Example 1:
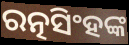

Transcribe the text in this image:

ରତ୍ନସିଂହଙ୍କ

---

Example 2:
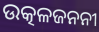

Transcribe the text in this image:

ଉତ୍କଳଜନନୀ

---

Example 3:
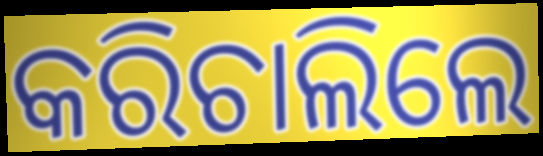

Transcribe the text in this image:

କରିଚାଲିଲେ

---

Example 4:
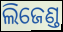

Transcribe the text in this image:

ଲିଜେଣ୍ଡ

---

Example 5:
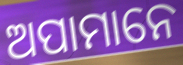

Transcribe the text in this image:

ଅପାମାନେ